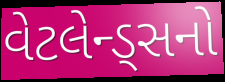
વેટલેન્ડ્સનો